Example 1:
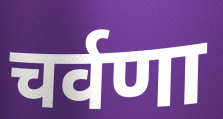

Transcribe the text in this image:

चर्वणा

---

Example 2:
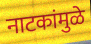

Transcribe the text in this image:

नाटकांमुळे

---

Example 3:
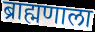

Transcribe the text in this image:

ब्राह्मणाला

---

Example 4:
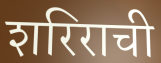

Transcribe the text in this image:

शरिराची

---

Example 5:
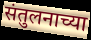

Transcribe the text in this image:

संतुलनाच्या